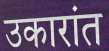
उकारांत